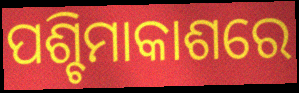
ପଶ୍ଚିମାକାଶରେ